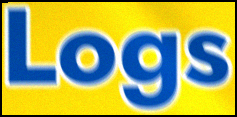
Logs